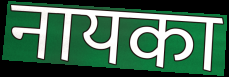
नायका